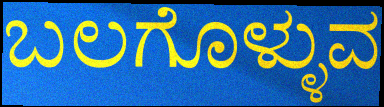
ಬಲಗೊಳ್ಳುವ